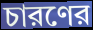
চারণের